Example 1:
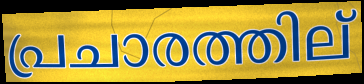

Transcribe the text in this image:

പ്രചാരത്തില്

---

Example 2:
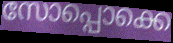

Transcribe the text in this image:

സോപ്പൊക്കെ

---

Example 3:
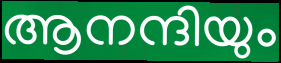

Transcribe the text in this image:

ആനന്ദിയും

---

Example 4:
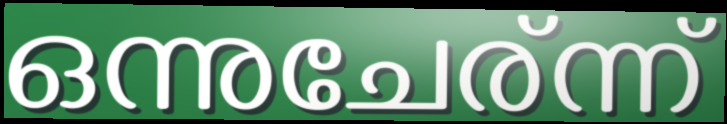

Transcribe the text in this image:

ഒന്നുചേര്ന്ന്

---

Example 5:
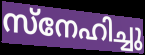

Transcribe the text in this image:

സ്നേഹിച്ചു